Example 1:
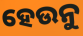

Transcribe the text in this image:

ହେଉନୁ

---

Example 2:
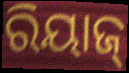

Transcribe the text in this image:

ରିୟାଜ୍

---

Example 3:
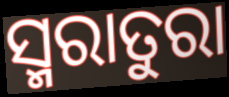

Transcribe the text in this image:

ସ୍ମରାତୁରା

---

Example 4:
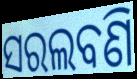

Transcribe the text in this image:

ସରଲବଣି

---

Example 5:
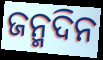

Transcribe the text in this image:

ଜନ୍ମଦିନ